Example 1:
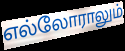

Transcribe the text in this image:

எல்லோராலும்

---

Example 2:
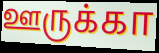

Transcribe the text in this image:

ஊருக்கா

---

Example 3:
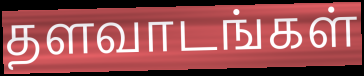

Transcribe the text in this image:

தளவாடங்கள்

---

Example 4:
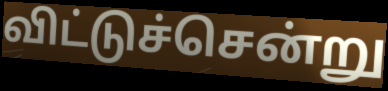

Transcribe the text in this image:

விட்டுச்சென்று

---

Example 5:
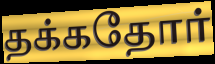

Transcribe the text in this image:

தக்கதோர்